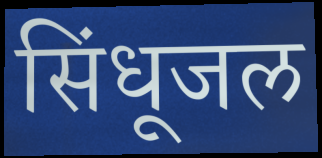
सिंधूजल